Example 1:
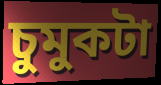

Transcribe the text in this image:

চুমুকটা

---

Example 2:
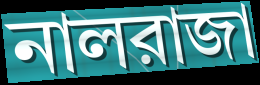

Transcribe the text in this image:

নালরাজা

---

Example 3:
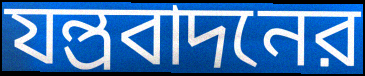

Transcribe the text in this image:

যন্ত্রবাদনের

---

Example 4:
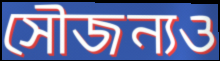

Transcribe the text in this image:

সৌজন্যও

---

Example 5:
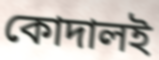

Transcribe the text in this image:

কোদালই